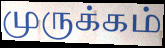
முருக்கம்